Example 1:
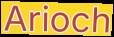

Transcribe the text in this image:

Arioch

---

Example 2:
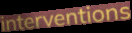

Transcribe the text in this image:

interventions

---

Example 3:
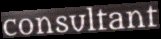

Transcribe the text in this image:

consultant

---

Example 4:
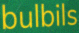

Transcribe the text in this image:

bulbils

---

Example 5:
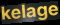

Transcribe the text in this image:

kelage